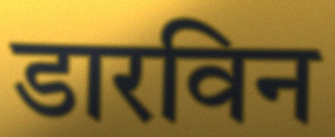
डारविन